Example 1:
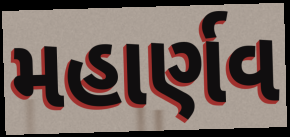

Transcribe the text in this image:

મહાર્ણવ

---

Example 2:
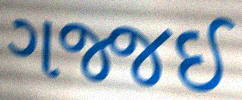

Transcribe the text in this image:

ગજ્જઈ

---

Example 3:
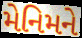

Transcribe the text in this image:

મેનિમને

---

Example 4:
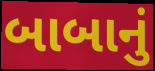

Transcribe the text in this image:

બાબાનું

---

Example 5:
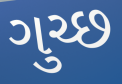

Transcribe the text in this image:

ગુચ્છ